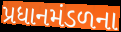
પ્રધાનમંડળના